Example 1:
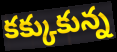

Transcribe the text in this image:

కక్కుకున్న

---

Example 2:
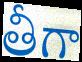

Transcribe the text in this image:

తీగా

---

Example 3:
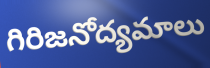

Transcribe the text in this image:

గిరిజనోద్యమాలు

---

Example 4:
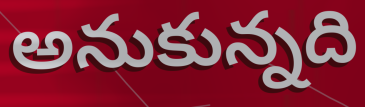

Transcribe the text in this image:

అనుకున్నది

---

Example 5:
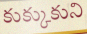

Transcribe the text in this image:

కుక్కుకుని